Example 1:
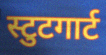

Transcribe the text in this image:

स्टुटगार्ट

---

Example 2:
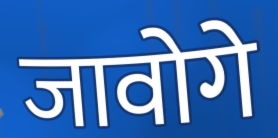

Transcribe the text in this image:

जावोगे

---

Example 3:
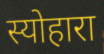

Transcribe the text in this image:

स्योहारा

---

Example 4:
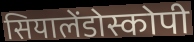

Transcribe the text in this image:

सियालेंडोस्कोपी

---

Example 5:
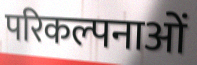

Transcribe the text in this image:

परिकल्पनाओं